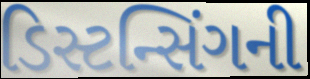
ડિસ્ટન્સિંગની